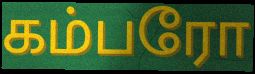
கம்பரோ